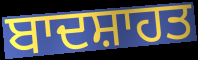
ਬਾਦਸ਼ਾਹਤ